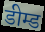
डीम्ड